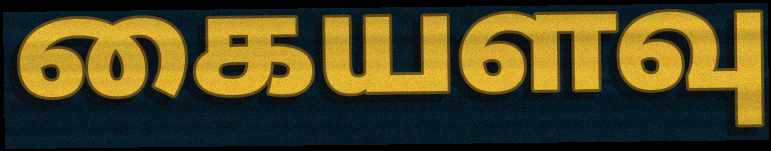
கையளவு